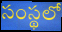
సంస్థలో